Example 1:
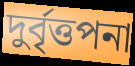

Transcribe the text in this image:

দুর্বৃত্তপনা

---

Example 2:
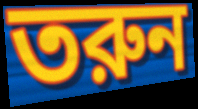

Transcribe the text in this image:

তরুন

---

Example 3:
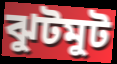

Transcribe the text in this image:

ঝুটমুট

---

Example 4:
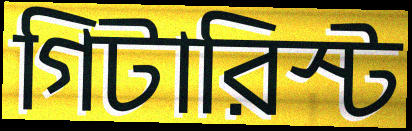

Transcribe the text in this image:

গিটারিস্ট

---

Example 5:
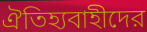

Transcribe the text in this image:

ঐতিহ্যবাহীদের